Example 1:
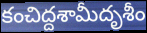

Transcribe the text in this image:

కంచిద్దశామీదృశీం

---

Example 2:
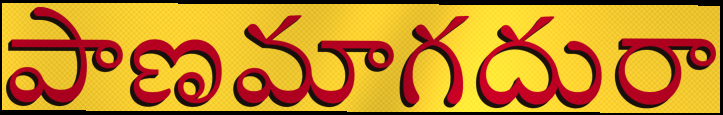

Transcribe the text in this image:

పాణమాగదురా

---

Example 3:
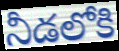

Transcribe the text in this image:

నీడలోకి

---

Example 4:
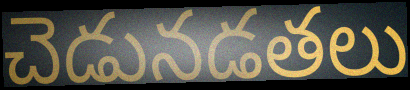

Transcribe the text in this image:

చెడునడతలు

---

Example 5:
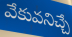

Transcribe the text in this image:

వేకువనిచ్చే